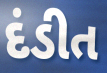
દંડીત